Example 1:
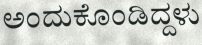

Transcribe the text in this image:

ಅಂದುಕೊಂಡಿದ್ದಳು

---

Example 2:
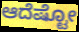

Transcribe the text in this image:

ಆದೆಷ್ಟೋ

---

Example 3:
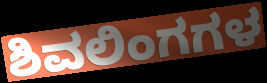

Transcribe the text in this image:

ಶಿವಲಿಂಗಗಳ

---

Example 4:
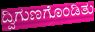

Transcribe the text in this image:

ದ್ವಿಗುಣಗೊಂಡಿತು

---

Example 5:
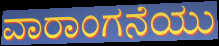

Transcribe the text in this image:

ವಾರಾಂಗನೆಯು